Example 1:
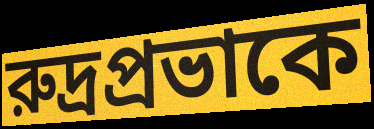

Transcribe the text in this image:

রুদ্রপ্রভাকে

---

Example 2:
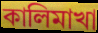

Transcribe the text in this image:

কালিমাখা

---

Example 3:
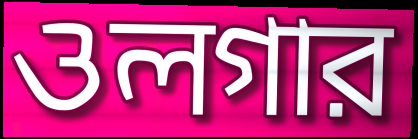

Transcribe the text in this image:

ওলগার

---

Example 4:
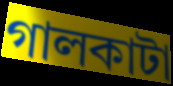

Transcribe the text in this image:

গালকাটা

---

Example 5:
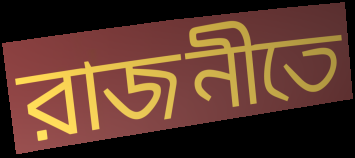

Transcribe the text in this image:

রাজনীতে